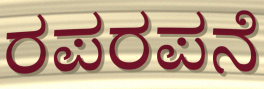
ರಪರಪನೆ